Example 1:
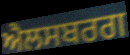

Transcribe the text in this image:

ਐਲਸਬਰਗ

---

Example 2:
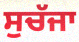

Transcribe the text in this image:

ਸੁਚੱਜਾ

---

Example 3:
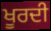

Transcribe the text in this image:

ਖੂਰਦੀ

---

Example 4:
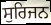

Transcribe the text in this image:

ਸੁਰਿਜਨ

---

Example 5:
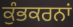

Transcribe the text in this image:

ਕੁੰਭਕਰਨਾਂ